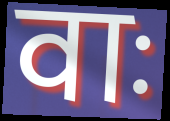
वाः